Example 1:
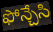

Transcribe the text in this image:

ఫోన్చేసి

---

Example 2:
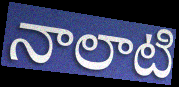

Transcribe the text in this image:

నాలాటి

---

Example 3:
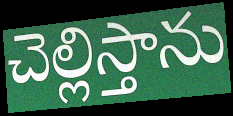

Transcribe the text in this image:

చెల్లిస్తాను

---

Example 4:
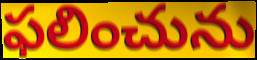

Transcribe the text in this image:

ఫలించును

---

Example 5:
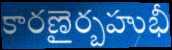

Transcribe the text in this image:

కారణైర్బహుభీ